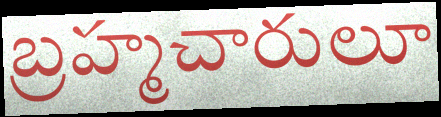
బ్రహ్మచారులూ